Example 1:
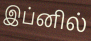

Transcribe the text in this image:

இப்னில்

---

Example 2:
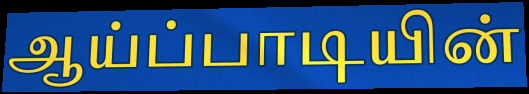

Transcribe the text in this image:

ஆய்ப்பாடியின்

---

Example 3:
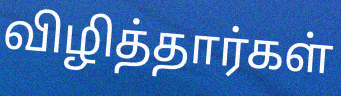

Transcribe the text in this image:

விழித்தார்கள்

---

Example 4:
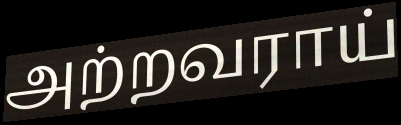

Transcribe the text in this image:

அற்றவராய்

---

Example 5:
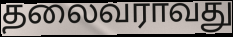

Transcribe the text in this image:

தலைவராவது